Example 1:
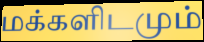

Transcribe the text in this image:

மக்களிடமும்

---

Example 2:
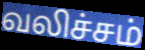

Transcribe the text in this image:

வலிச்சம்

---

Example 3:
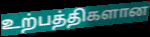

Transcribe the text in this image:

உற்பத்திகளான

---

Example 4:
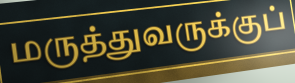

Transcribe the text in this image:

மருத்துவருக்குப்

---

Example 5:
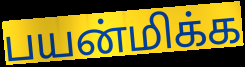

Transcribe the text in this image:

பயன்மிக்க